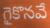
గైకొనవే